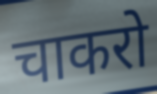
चाकरो